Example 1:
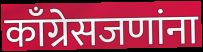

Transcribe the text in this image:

काँग्रेसजणांना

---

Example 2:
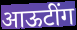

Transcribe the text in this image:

आऊटींग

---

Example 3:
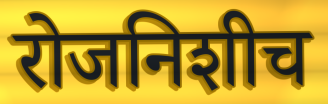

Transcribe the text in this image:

रोजनिशीच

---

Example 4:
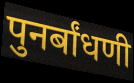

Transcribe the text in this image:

पुनर्बांधणी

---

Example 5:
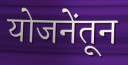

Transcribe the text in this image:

योजनेंतून